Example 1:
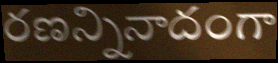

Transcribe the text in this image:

రణన్నినాదంగా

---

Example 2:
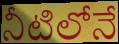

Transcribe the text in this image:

నీటిలోనే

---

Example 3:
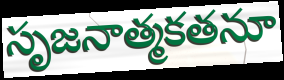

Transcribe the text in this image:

సృజనాత్మకతనూ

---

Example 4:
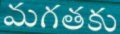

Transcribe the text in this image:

మగతకు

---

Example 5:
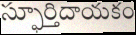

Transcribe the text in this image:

స్ఫూర్తిదాయకం